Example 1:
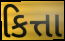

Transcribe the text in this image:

કિત્તા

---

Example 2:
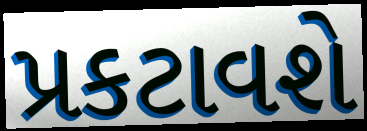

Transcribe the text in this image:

પ્રકટાવશે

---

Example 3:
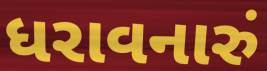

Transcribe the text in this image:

ધરાવનારું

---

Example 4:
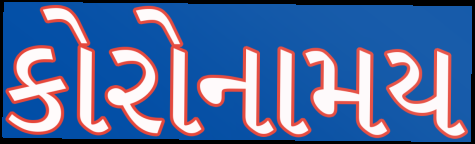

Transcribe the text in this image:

કોરોનામય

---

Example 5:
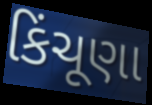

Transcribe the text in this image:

કિંચૂણા